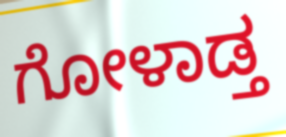
ಗೋಳಾಡ್ತ